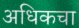
अधिकचा